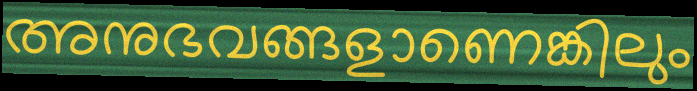
അനുഭവങ്ങളാണെങ്കിലും